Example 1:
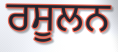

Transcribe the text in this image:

ਰਸੂਲਨ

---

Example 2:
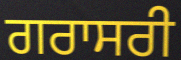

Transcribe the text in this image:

ਗਰਾਸਰੀ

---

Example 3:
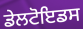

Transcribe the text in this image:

ਡੇਲਟੋਇਡਸ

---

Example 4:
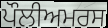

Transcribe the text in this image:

ਪੌਲੀਅਮਰਸ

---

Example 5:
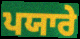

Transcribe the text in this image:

ਪਯਾਰੇ